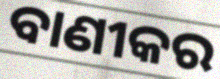
ବାଣୀକର